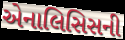
એનાલિસિસની